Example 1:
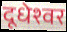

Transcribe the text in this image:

दूधेश्वर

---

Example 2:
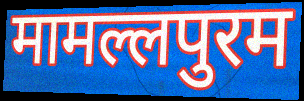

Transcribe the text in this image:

मामल्लपुरम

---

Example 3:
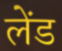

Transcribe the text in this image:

लेंड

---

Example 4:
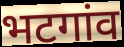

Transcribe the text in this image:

भटगांव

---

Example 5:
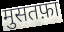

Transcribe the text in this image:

मुसतफ़ा